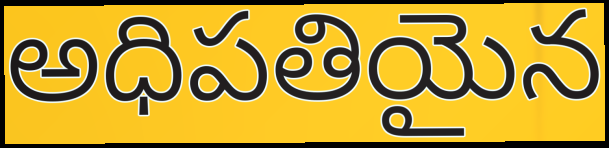
అధిపతియైన